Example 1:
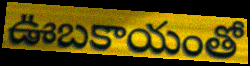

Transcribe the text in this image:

ఊబకాయంతో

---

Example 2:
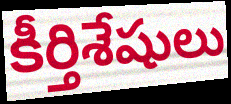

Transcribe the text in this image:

కీర్తిశేషులు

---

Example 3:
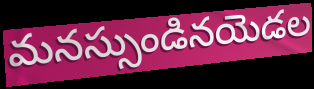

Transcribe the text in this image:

మనస్సుండినయెడల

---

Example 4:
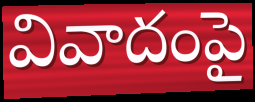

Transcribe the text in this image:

వివాదంపై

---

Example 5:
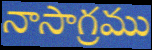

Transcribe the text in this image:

నాసాగ్రము